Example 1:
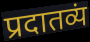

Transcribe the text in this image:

प्रदातव्यं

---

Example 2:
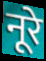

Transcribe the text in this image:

नूरे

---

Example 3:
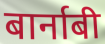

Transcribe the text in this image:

बार्नाबी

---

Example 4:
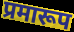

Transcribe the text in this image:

प्रमारूप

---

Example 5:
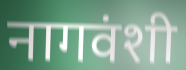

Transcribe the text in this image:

नागवंशी